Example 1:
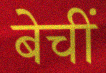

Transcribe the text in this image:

बेचीं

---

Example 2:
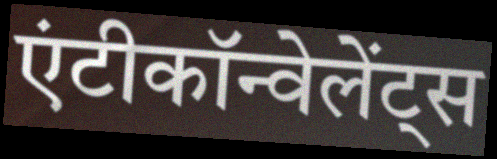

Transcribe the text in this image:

एंटीकॉन्वेलेंट्स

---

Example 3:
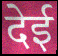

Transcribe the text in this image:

देई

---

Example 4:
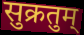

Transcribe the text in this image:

सुक्रतुम्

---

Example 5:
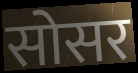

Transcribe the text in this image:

सोसर